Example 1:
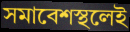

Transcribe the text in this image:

সমাবেশস্থলেই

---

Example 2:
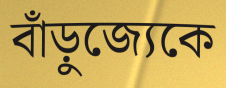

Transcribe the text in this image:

বাঁড়ুজ্যেকে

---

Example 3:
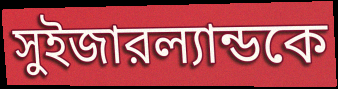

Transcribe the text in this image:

সুইজারল্যান্ডকে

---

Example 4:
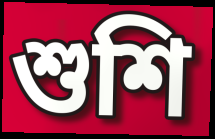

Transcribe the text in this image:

শুশি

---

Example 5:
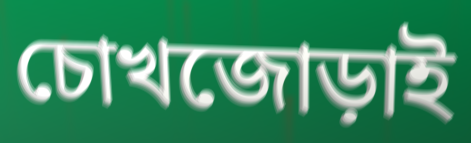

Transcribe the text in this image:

চোখজোড়াই